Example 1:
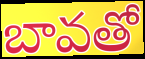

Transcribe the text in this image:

బావతో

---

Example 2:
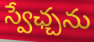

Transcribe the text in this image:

స్వేఛ్చను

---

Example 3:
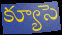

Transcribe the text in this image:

క్యూసె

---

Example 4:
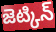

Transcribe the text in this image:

జెట్కిన్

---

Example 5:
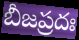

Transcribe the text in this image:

బీజప్రదః